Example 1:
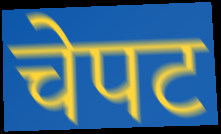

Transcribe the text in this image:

चेपट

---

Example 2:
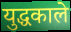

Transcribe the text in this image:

युद्धकाले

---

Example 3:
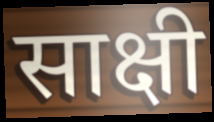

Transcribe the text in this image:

साक्षी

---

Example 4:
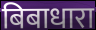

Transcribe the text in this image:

बिबाधारा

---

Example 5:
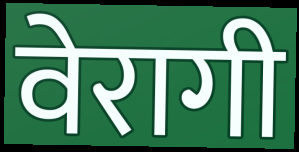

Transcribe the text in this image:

वेरागी